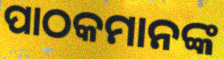
ପାଠକମାନଙ୍କ